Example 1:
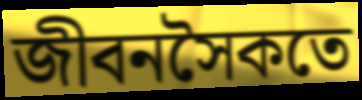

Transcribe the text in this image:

জীবনসৈকতে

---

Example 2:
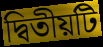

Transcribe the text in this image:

দ্বিতীয়টি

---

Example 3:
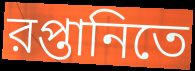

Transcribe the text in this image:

রপ্তানিতে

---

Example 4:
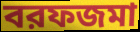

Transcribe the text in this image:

বরফজমা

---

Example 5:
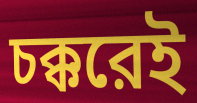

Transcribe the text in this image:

চক্করেই